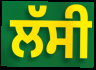
ਲੱਸੀ